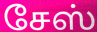
சேஸ்